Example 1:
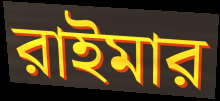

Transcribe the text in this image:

রাইমার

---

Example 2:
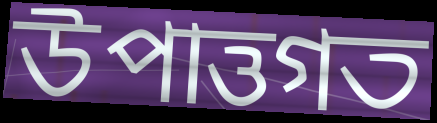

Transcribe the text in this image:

উপাত্তগত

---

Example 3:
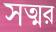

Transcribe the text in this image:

সত্মর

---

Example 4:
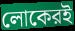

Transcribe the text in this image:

লোকেরই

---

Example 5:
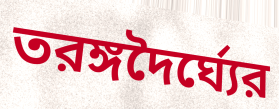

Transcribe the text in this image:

তরঙ্গদৈর্ঘ্যের